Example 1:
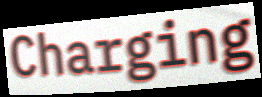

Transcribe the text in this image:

Charging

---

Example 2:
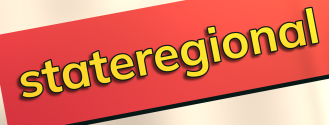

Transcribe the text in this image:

stateregional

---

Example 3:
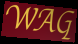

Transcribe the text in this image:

WAG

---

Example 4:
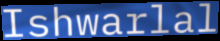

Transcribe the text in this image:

Ishwarlal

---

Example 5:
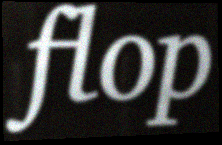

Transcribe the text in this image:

flop